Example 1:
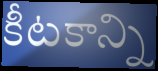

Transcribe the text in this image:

కీటకాన్ని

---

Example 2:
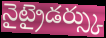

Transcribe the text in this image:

నైట్రైడర్స్కు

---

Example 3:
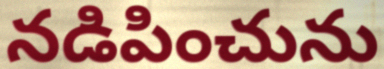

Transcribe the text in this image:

నడిపించును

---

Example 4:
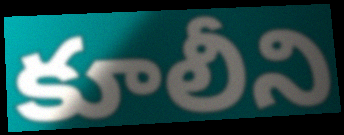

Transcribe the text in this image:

కూలీని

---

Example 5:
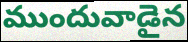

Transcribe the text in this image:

ముందువాడైన